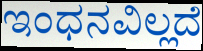
ಇಂಧನವಿಲ್ಲದೆ